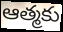
ఆత్మకు